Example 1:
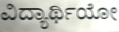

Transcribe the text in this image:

ವಿದ್ಯಾರ್ಥಿಯೋ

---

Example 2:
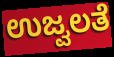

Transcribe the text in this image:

ಉಜ್ವಲತೆ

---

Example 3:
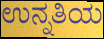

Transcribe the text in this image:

ಉನ್ನತಿಯ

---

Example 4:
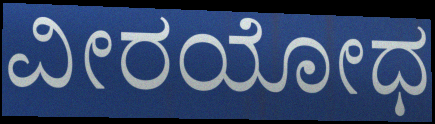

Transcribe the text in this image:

ವೀರಯೋಧ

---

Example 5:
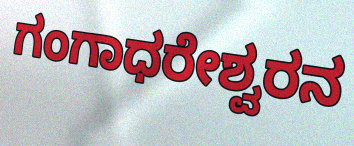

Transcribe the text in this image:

ಗಂಗಾಧರೇಶ್ವರನ